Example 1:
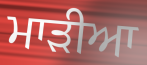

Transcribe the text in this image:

ਮਾੜੀਆ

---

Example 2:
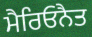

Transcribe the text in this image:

ਮੈਰਿਓਨੈਤ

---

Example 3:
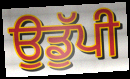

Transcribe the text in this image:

ਉਡੁੱਪੀ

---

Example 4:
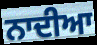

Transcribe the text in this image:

ਨਾਦੀਆ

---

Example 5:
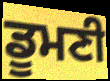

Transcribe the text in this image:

ਡੂਮਣੀ